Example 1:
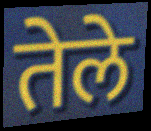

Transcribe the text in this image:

तेले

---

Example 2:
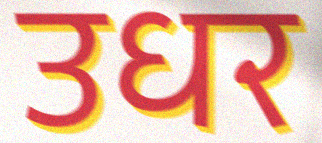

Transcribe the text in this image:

उधर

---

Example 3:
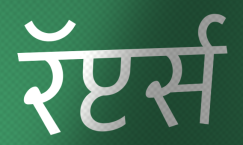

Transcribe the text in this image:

रॅप्टर्स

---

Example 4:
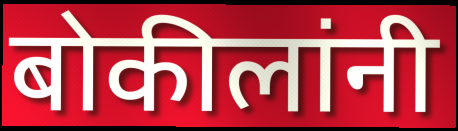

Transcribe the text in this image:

बोकीलांनी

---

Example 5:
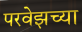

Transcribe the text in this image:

परवेझच्या